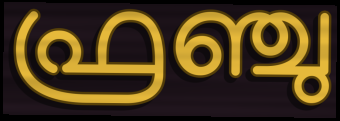
ഫ്രഞ്ചു